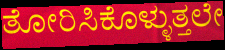
ತೋರಿಸಿಕೊಳ್ಳುತ್ತಲೇ